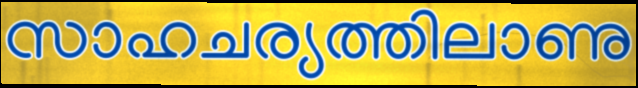
സാഹചര്യത്തിലാണു